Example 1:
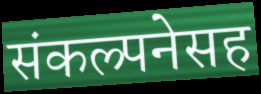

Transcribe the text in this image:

संकल्पनेसह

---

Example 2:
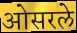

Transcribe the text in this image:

ओसरले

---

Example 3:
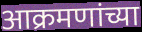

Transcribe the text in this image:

आक्रमणांच्या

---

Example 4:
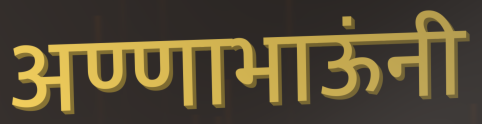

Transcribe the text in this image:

अण्णाभाऊंनी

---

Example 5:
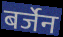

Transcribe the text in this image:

बर्जेन